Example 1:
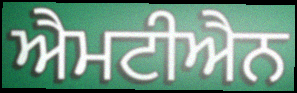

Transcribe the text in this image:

ਐਮਟੀਐਨ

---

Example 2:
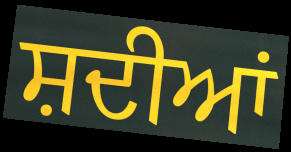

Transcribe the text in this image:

ਸ਼ਦੀਆਂ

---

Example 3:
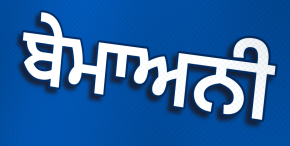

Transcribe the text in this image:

ਬੇਮਾਅਨੀ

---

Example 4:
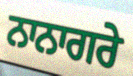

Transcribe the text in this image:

ਨਾਨਾਗਰੇ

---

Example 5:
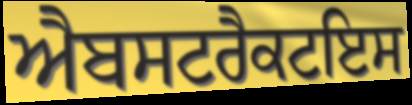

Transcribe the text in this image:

ਐਬਸਟਰੈਕਟਇਸ